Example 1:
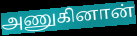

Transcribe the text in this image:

அணுகினான்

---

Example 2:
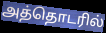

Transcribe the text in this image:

அத்தொடரில்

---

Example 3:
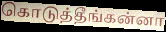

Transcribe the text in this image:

கொடுத்தீங்கன்னா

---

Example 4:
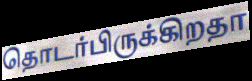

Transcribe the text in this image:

தொடர்பிருக்கிறதா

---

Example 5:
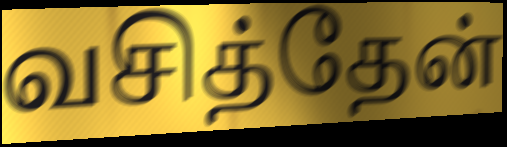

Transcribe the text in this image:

வசித்தேன்